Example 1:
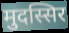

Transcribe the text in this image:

मुदस्सिर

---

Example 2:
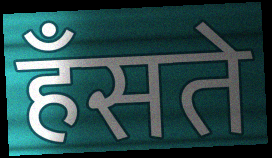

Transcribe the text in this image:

हँसते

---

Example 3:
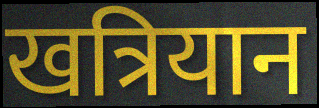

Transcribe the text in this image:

खत्रियान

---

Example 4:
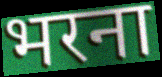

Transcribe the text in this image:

भरना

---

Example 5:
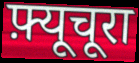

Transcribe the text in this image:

फ़्यूचूरा